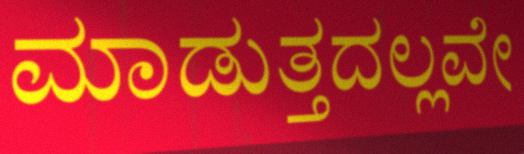
ಮಾಡುತ್ತದಲ್ಲವೇ